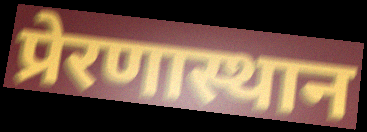
प्रेरणास्थान